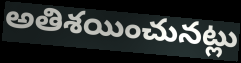
అతిశయించునట్లు